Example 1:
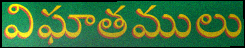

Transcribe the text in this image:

విఘాతములు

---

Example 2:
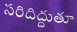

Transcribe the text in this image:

సరిదిద్దుతూ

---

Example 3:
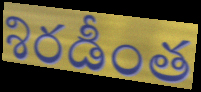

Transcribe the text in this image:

శిరడీంత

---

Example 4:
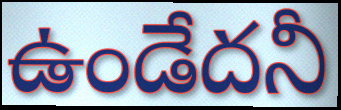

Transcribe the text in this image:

ఉండేదనీ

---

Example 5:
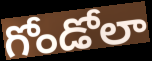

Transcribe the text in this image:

గోండోలా